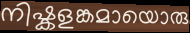
നിഷ്കളങ്കമായൊരു